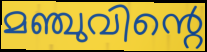
മഞ്ചുവിന്റെ